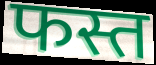
फस्त